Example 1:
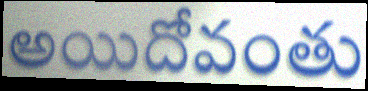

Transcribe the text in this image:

అయిదోవంతు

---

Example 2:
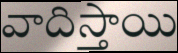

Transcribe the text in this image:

వాదిస్తాయి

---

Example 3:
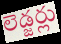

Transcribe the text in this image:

లెడ్జర్లు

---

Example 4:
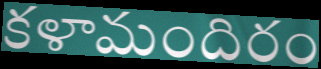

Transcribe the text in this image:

కళామందిరం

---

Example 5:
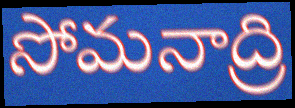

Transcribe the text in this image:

సోమనాద్రి